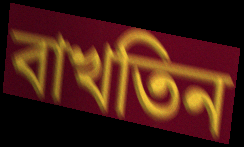
বাখতিন